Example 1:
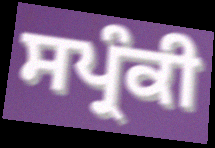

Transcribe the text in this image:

ਸਪ੍ਰੰਕੀ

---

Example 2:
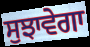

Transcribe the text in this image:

ਸੁਝਾਵੇਗਾ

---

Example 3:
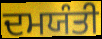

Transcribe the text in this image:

ਦਮਯੰਤੀ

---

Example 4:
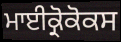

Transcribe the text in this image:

ਮਾਈਕ੍ਰੋਕੋਕਸ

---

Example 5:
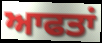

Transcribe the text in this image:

ਆਫਤਾਂ